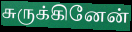
சுருக்கினேன்